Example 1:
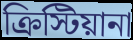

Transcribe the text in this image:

ক্রিস্টিয়ানা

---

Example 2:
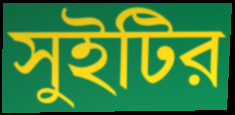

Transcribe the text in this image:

সুইটির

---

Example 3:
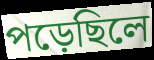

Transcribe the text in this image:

পড়েছিলে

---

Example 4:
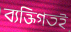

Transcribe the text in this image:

ব্যক্তিগতই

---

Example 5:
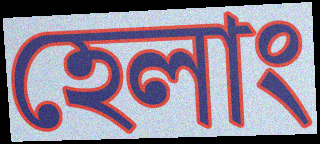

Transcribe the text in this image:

হেলাং